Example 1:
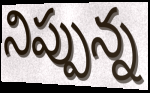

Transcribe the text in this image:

నిప్పున్న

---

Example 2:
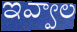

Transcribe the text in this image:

ఇవ్వాల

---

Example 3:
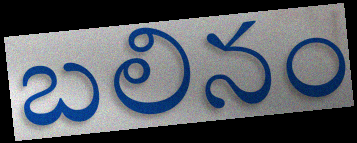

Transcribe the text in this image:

బలినం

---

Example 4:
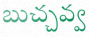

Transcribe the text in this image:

బుచ్చవ్వ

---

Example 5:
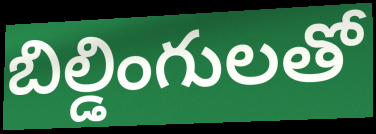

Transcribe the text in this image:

బిల్డింగులతో